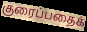
குரைப்பதைக்